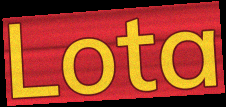
Lota